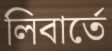
লিবার্তে